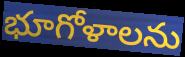
భూగోళాలను